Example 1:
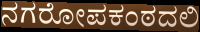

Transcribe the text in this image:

ನಗರೋಪಕಂಠದಲಿ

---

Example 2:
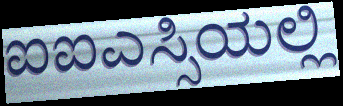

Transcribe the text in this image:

ಐಐಎಸ್ಸಿಯಲ್ಲಿ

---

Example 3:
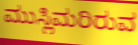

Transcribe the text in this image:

ಮುಸ್ಲಿಮರಿರುವ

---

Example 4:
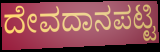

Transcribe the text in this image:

ದೇವದಾನಪಟ್ಟಿ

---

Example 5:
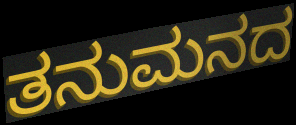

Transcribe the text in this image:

ತನುಮನದ